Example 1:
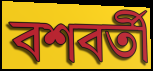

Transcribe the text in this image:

বশবর্তী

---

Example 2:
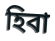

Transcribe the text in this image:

হিবা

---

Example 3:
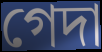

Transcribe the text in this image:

গেদা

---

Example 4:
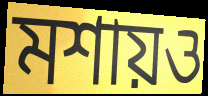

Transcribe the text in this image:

মশায়ও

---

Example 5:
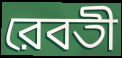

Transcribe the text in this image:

রেবতী